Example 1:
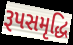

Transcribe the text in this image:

રૂપસમૃદ્ધિ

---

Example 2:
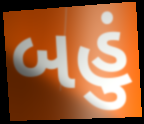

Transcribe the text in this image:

બહું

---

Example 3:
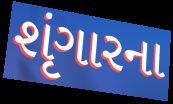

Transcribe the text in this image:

શૃંગારના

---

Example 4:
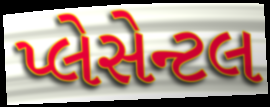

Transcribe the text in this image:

પ્લેસેન્ટલ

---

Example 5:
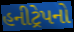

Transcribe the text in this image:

હનીટ્રેપનો